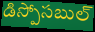
డిస్పోసబుల్